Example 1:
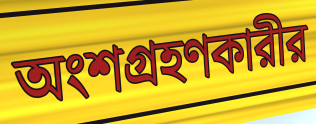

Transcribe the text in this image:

অংশগ্রহণকারীর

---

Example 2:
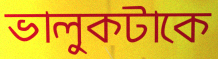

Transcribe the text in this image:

ভালুকটাকে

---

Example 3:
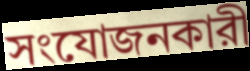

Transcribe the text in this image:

সংযোজনকারী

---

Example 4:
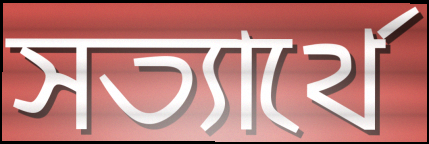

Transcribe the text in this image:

সত্যার্থে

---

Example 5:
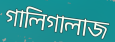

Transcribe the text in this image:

গালিগালাজ